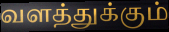
வளத்துக்கும்